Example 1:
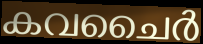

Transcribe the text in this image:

കവചൈർ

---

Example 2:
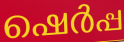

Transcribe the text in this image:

ഷെർപ്പ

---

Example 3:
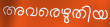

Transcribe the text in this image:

അവരെഴുതിയ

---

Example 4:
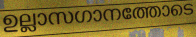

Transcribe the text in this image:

ഉല്ലാസഗാനത്തോടെ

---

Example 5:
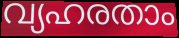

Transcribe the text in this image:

വ്യഹരതാം